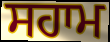
ਸਹਾਮ